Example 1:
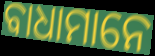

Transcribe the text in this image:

ବାଧାମାନେ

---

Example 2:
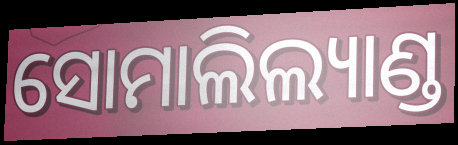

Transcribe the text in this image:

ସୋମାଲିଲ୍ୟାଣ୍ଡ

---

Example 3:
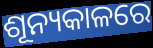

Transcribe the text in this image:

ଶୂନ୍ୟକାଳରେ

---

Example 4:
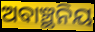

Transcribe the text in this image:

ଅବାଞ୍ଛନିୟ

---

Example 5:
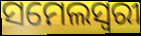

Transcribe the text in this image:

ସମେଲସ୍ୱରୀ